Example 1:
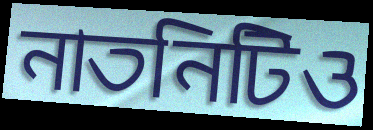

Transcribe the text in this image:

নাতনিটিও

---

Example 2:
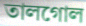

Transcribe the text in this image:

তালগোল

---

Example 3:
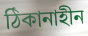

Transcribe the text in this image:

ঠিকানাহীন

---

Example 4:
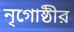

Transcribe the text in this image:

নৃগোষ্ঠীর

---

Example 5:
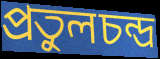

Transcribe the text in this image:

প্রতুলচন্দ্র